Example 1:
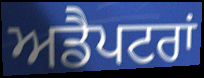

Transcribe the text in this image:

ਅਡੈਪਟਰਾਂ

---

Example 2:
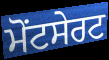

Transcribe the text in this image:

ਮੋਂਟਸੇਰਟ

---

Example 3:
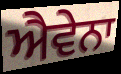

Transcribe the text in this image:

ਐਵੇਨਾ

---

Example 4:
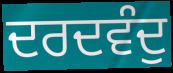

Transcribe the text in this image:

ਦਰਦਵੰਦੁ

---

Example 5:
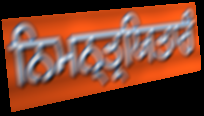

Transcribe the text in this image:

ਨਿਮਨ੍ਤ੍ਰਯਿਤਾਰੰ